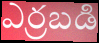
ఎర్రబడి